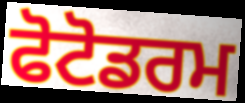
ਫੋਟੋਡਰਮ